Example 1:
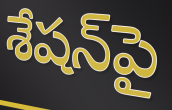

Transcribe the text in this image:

శేషన్‌పై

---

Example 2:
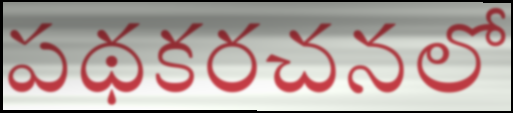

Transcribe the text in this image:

పథకరచనలో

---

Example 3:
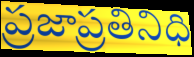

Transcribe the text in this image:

ప్రజాప్రతినిధి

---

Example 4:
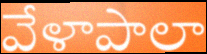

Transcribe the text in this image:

వేళాపాలా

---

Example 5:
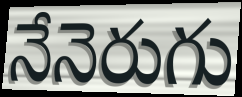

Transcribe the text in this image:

నేనెరుగు